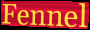
Fennel